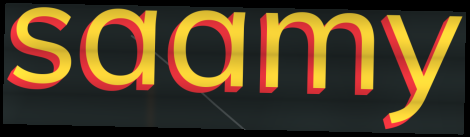
saamy